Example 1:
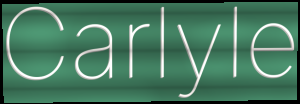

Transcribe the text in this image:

Carlyle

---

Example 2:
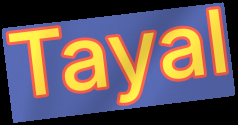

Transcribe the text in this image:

Tayal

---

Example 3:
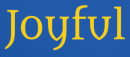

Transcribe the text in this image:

Joyful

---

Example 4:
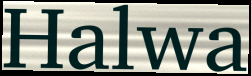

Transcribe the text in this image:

Halwa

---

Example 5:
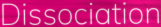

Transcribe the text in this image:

Dissociation